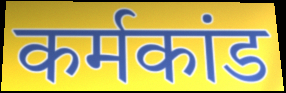
कर्मकांड